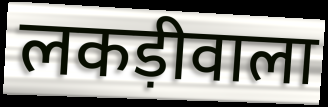
लकड़ीवाला